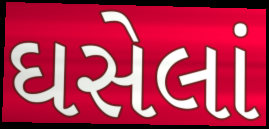
ઘસેલાં